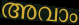
അവാം